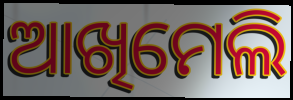
ଆଖିମେଲି